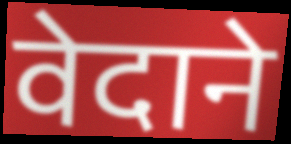
वेदाने